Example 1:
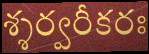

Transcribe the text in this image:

శ్శర్వరీకరః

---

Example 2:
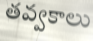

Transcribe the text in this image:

తవ్వకాలు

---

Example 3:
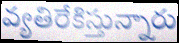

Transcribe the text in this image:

వ్యతిరేకిస్తున్నారు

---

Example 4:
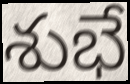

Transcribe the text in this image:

శుభే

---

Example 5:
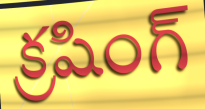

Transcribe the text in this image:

క్రషింగ్